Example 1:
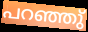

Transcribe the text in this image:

പറഞ്ഞു്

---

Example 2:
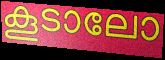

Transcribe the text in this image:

കൂടാലോ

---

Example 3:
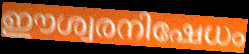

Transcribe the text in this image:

ഈശ്വരനിഷേധം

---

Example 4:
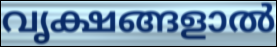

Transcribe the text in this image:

വൃക്ഷങ്ങളാൽ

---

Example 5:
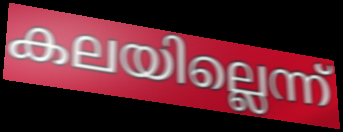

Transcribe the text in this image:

കലയില്ലെന്ന്